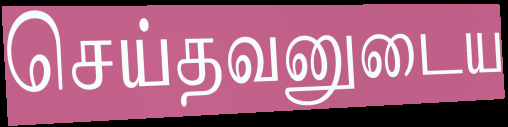
செய்தவனுடைய